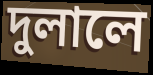
দুলালে